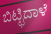
ಬಿಟ್ಟಿದಾಳೆ